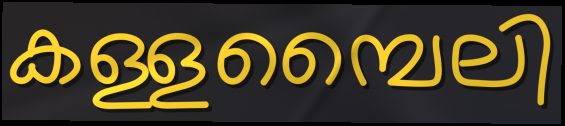
കള്ളമ്പൈലി